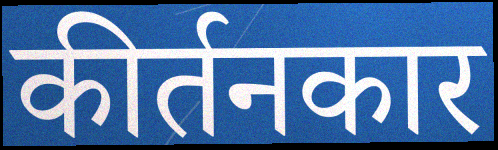
कीर्तनकार